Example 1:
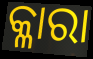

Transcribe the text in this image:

କ୍ଳାରା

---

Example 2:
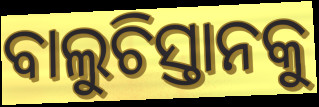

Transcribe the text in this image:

ବାଲୁଚିସ୍ତାନକୁ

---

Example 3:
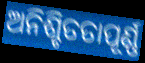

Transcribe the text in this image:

ଅନିଶ୍ଚିତତାପୂର୍ଣ୍ଣ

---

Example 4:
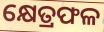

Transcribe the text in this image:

କ୍ଷେତ୍ରଫଳ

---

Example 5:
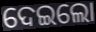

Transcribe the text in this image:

ଦେଇଲୋ